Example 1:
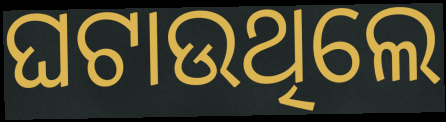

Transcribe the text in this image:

ଘଟାଉଥିଲେ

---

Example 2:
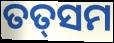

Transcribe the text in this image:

ତତ୍‍ସମ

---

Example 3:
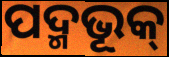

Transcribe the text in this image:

ପଦ୍ମଭୂକ୍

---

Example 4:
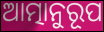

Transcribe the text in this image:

ଆତ୍ମାନୁରୂପ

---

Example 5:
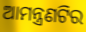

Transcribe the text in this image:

ଆମନ୍ତ୍ରଣଟିର